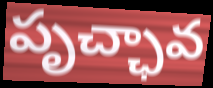
పృచ్ఛావ